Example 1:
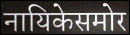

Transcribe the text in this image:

नायिकेसमोर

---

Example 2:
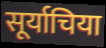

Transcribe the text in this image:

सूर्याचिया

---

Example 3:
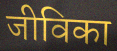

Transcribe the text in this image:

जीविका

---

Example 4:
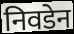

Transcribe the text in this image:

निवडेन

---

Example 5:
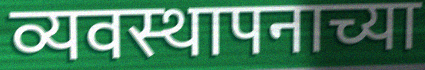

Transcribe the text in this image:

व्यवस्थापनाच्या